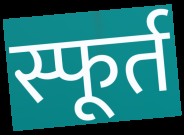
स्फूर्त